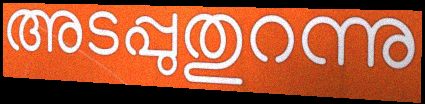
അടപ്പുതുറന്നു